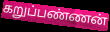
கறுப்பண்ணன்